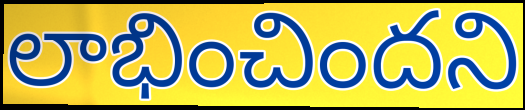
లాభించిందని